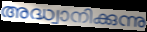
അദ്ധ്വാനിക്കുന്നു